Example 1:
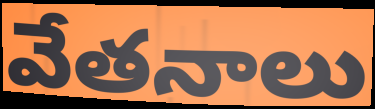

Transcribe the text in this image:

వేతనాలు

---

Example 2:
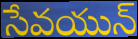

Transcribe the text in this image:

సేవయున్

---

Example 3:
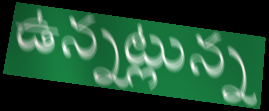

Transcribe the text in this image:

ఉన్నట్లున్న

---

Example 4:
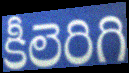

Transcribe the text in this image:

కీలెరిగి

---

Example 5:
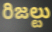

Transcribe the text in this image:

రిజల్టు